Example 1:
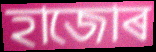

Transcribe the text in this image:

হাজোৰ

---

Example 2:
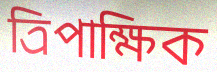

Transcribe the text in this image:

ত্ৰিপাক্ষিক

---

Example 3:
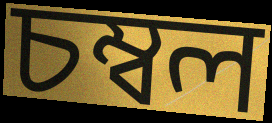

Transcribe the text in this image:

চম্বল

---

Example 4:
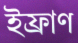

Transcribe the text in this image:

ইফ্ৰাণ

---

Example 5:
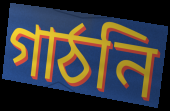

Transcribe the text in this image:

গাঠনি